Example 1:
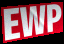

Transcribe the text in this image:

EWP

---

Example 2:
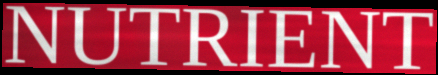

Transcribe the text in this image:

NUTRIENT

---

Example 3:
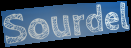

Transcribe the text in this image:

Sourdel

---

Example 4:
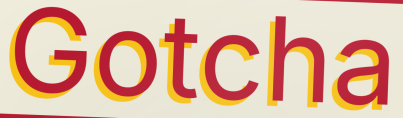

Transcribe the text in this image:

Gotcha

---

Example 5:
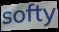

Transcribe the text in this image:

softy